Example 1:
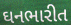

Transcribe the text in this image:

ઘનભારીત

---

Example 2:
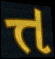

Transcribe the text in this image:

ત્ત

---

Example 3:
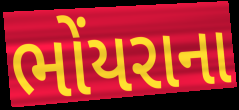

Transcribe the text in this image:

ભોંયરાના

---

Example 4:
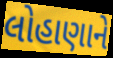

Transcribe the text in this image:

લોહાણાને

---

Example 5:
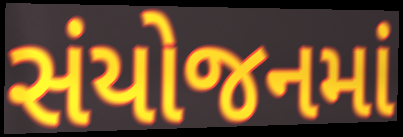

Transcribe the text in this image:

સંયોજનમાં